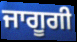
ਜਾਗੂਗੀ